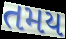
તમય